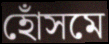
হোঁসমে